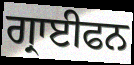
ਗ੍ਰਾਈਫਨ